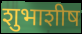
शुभाशीष